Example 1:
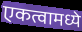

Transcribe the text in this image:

एकत्वामध्ये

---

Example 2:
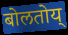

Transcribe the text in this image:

बोलतोय्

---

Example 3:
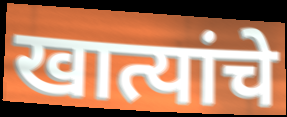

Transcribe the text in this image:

खात्यांचे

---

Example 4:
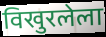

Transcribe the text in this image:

विखुरलेला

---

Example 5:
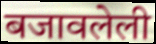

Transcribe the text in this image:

बजावलेली